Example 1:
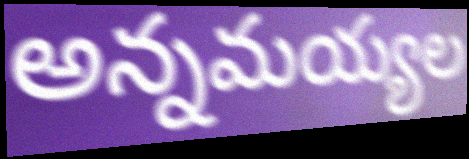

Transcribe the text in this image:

అన్నమయ్యల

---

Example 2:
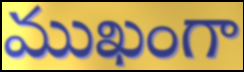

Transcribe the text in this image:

ముఖంగా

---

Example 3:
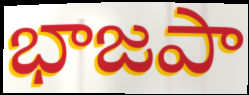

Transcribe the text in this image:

భాజపా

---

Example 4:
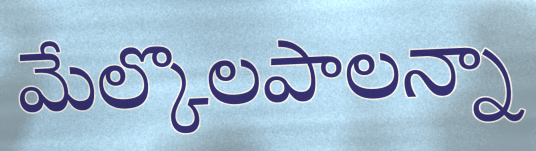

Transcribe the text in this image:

మేల్కొలపాలన్నా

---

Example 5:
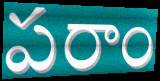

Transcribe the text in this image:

పరాం